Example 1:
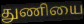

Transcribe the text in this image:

துணியை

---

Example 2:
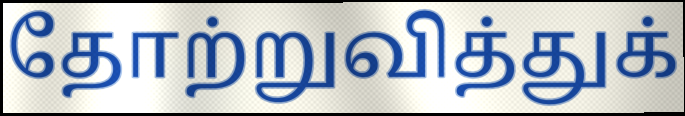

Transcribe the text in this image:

தோற்றுவித்துக்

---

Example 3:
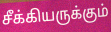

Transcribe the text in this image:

சீக்கியருக்கும்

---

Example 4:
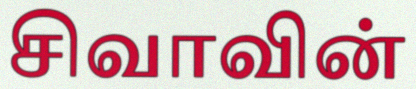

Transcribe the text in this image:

சிவாவின்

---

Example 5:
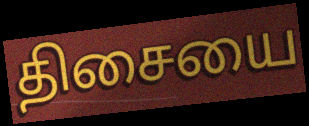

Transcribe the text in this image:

திசையை